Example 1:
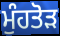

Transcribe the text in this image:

ਮੁੰਹਤੋੜ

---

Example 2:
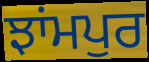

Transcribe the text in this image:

ਝਾਂਮਪੁਰ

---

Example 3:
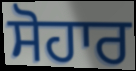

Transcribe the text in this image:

ਸੋਹਾਰ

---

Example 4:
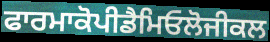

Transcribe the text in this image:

ਫਾਰਮਾਕੋਪੀਡੈਮਿਓਲੋਜੀਕਲ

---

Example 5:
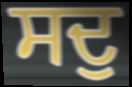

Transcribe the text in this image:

ਸਦੁ